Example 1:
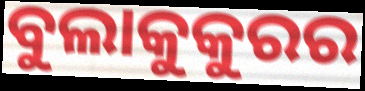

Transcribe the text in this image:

ବୁଲାକୁକୁରର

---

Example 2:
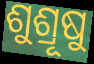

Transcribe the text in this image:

ଶୁଶ୍ରୂଷୁ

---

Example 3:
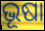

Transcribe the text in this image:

ଭୂଷା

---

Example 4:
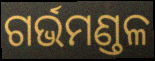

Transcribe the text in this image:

ଗର୍ଭମଣ୍ଡଳ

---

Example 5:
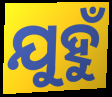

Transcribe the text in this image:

ଯୁହୁଁ